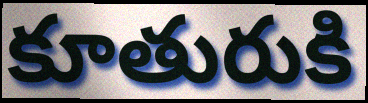
కూతురుకి